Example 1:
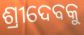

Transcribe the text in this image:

ଶ୍ରୀଦେବକୁ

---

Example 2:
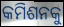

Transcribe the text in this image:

କମିଶନକୁ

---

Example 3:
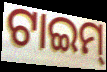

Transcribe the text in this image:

ଟାଇମ୍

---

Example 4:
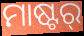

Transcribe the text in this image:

ମାଷ୍ଟର୍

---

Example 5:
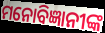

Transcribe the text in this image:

ମନୋବିଜ୍ଞାନୀଙ୍କ